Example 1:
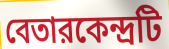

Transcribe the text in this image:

বেতারকেন্দ্রটি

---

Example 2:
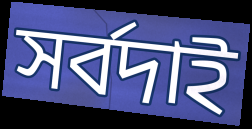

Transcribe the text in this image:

সর্বদাই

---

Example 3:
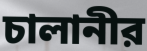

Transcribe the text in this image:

চালানীর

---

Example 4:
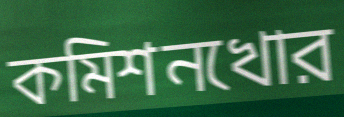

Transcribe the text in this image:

কমিশনখোর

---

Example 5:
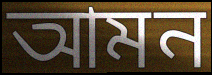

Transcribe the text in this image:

আমন